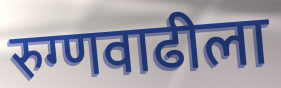
रुग्णवाढीला